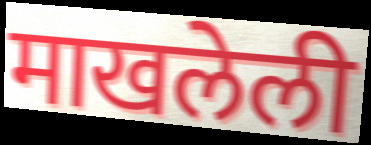
माखलेली